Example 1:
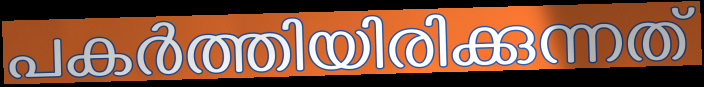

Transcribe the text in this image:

പകർത്തിയിരിക്കുന്നത്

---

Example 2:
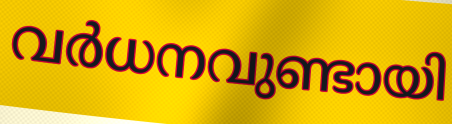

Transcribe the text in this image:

വർധനവുണ്ടായി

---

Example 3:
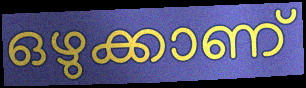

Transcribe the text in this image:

ഒഴുക്കാണ്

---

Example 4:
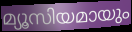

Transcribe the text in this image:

മ്യൂസിയമായും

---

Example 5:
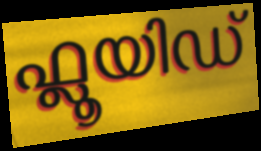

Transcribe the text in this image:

ഫ്ലൂയിഡ്